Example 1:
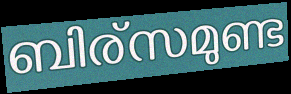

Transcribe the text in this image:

ബിര്സമുണ്ട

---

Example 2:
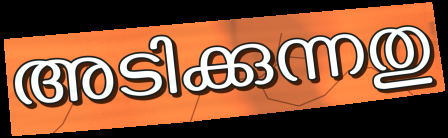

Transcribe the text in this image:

അടിക്കുന്നതു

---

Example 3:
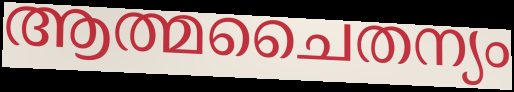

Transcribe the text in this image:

ആത്മചൈതന്യം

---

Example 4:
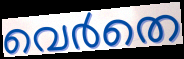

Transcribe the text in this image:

വെർതെ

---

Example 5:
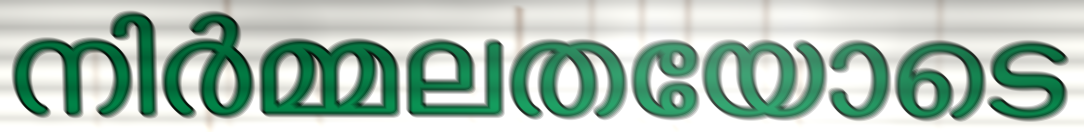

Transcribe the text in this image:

നിർമ്മലതയോടെ